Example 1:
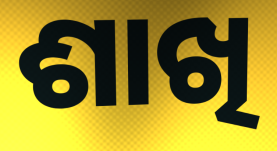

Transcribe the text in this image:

ଶାଖି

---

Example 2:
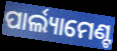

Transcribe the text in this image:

ପାର୍ଲ୍ୟାମେଣ୍ଟ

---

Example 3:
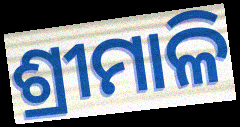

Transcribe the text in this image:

ଶ୍ରୀମାଳି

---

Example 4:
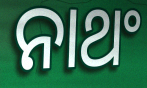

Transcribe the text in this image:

ନାଥଂ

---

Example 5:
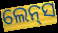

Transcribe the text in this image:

ଲେନ୍‌ସ